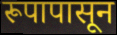
रूपापासून